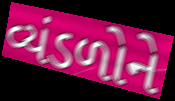
વ્યંડળોને